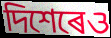
দিশেৰেও